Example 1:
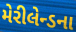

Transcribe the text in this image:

મેરીલેન્ડના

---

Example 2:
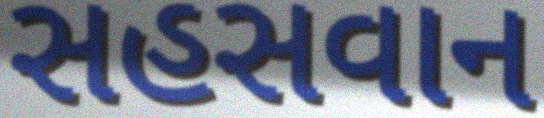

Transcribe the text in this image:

સહસવાન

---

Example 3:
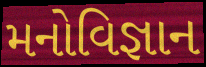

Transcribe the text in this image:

મનોવિજ્ઞાન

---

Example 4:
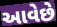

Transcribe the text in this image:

આવેછે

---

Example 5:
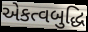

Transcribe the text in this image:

એકત્વબુદ્ધિ